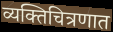
व्यक्तिचित्रणात